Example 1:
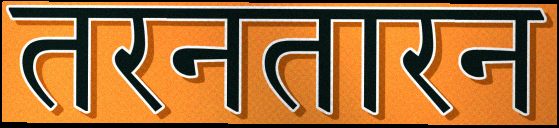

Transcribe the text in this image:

तरनतारन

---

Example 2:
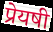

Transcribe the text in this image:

प्रेयषी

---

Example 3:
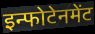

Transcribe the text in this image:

इन्फोटेनमेंट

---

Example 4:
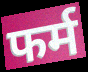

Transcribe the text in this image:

फर्म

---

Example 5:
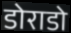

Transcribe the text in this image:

डोराडो